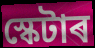
স্কেটাৰ